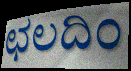
ಛಲದಿಂ